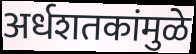
अर्धशतकांमुळे